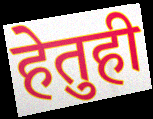
हेतुही